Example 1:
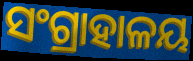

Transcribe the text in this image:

ସଂଗ୍ରାହାଳୟ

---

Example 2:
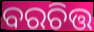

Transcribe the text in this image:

ବରଚିତ୍ତ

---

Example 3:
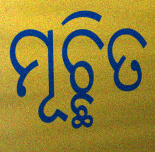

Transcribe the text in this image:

ମୂଚ୍ଛିତ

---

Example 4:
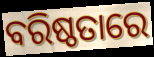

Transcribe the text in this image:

ବରିଷ୍ଠତାରେ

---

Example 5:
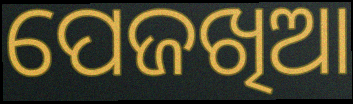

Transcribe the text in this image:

ପେଜଖିଆ